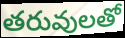
తరువులతో